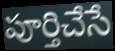
పూర్తిచేసే